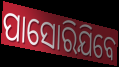
ପାସୋରିଯିବେ